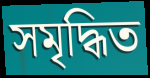
সমৃদ্ধিত